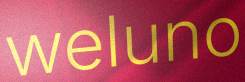
weluno